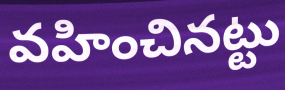
వహించినట్టు